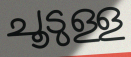
ചൂടുള്ള